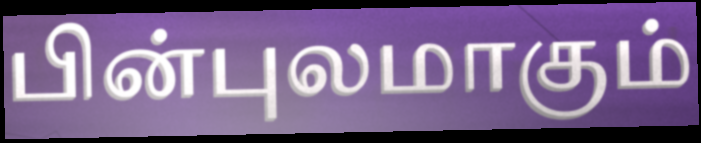
பின்புலமாகும்